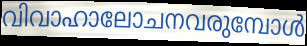
വിവാഹാലോചനവരുമ്പോൾ